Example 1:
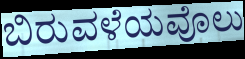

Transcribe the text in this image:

ಬಿರುವಳೆಯವೊಲು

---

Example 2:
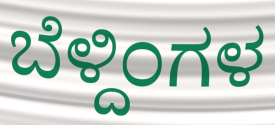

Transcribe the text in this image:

ಬೆಳ್ದಿಂಗಳ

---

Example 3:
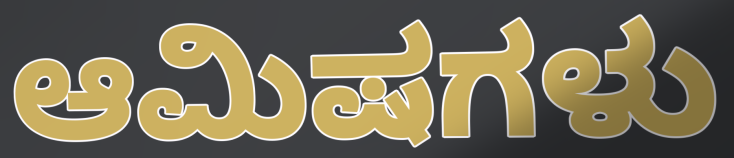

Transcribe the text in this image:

ಆಮಿಷಗಳು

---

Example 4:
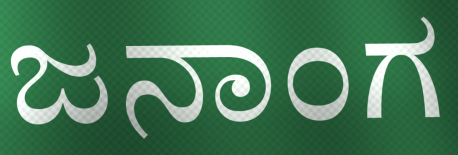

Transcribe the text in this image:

ಜನಾಂಗ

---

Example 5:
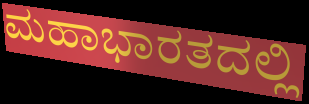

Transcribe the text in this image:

ಮಹಾಭಾರತದಲ್ಲಿ